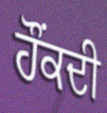
ਹੌਂਕਦੀ